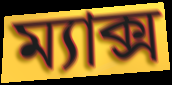
ম্যাক্স